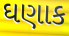
ઘણાક